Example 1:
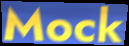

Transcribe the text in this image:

Mock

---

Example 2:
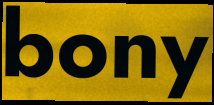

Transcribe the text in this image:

bony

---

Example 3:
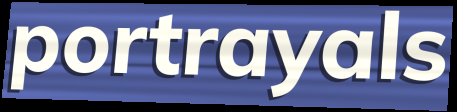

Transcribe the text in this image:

portrayals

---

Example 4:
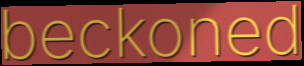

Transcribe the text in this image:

beckoned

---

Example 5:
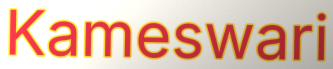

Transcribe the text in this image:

Kameswari